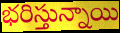
భరిస్తున్నాయి